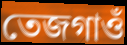
তেজগাওঁ